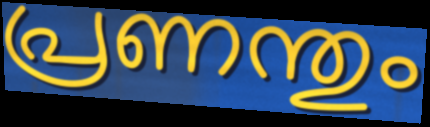
പ്രണന്തും